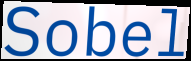
Sobel